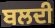
ਬਲਦੀ